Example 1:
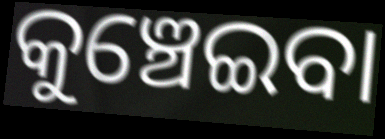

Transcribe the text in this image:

କୁଞ୍ଚେଇବା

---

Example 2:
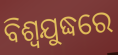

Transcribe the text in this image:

ବିଶ୍ଵଯୁଦ୍ଧରେ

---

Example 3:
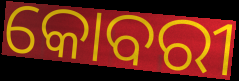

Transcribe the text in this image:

କୋବରୀ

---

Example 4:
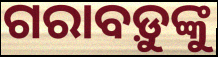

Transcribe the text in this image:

ଗରାବଡ଼ୁଙ୍କୁ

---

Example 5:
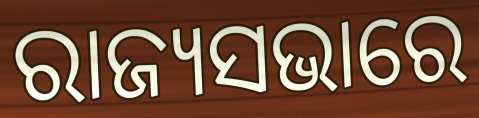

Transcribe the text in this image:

ରାଜ୍ୟସଭାରେ